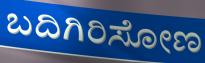
ಬದಿಗಿರಿಸೋಣ